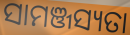
ସାମଞ୍ଜସ୍ୟତା